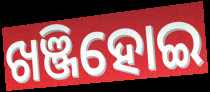
ଖଞ୍ଜିହୋଇ